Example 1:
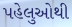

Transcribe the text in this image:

પહેલુઓથી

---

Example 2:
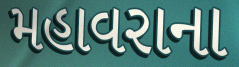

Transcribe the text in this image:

મહાવરાના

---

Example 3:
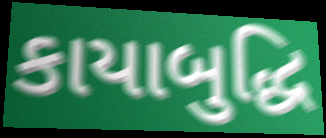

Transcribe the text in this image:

કાયાબુદ્ધિ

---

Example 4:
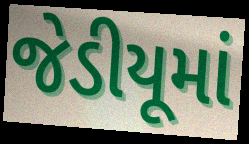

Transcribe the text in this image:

જેડીયૂમાં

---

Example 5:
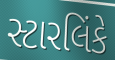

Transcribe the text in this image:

સ્ટારલિંકે